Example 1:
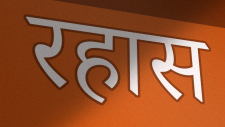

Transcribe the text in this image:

रहास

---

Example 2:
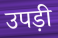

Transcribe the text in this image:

उपड़ी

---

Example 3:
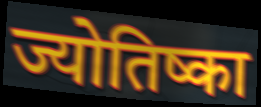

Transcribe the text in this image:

ज्योतिष्का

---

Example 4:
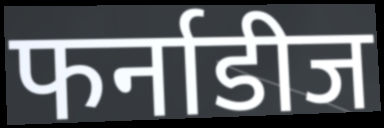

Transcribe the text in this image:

फर्नाडीज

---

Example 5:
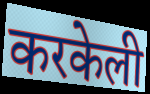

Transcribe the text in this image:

करकेली